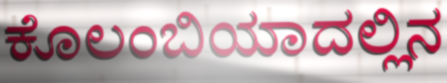
ಕೊಲಂಬಿಯಾದಲ್ಲಿನ